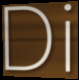
Di